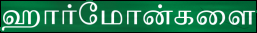
ஹார்மோன்களை